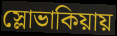
স্লোভাকিয়ায়